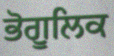
ਭੋਗੂਲਿਕ